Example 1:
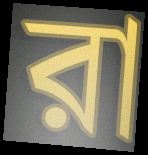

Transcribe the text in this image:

রা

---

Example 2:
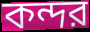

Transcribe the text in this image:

কন্দর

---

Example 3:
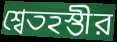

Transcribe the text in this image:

শ্বেতহস্তীর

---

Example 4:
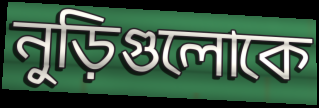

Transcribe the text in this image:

নুড়িগুলোকে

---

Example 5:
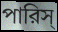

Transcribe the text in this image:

পারিস্